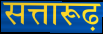
सत्तारूढ़